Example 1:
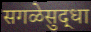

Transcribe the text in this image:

सगळेसुद्धा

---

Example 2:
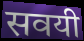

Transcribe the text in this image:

सवयी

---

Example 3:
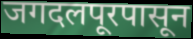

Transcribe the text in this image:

जगदलपूरपासून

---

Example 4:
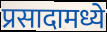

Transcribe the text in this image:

प्रसादामध्ये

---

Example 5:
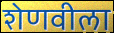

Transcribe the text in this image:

शेणवीला